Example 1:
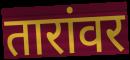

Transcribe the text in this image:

तारांवर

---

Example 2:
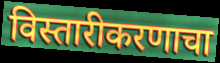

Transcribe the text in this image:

विस्तारीकरणाचा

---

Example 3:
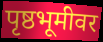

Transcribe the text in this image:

पृष्ठभूमीवर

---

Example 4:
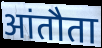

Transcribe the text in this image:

आंतौता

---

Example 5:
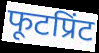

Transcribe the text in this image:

फूटप्रिंट